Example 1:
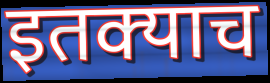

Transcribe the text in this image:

इतक्याच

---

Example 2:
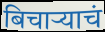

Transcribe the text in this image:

बिचाऱ्याचं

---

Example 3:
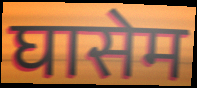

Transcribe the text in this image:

घासेम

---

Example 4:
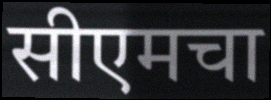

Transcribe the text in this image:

सीएमचा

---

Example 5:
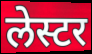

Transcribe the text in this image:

लेस्टर